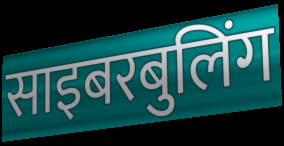
साइबरबुलिंग